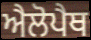
ਐਲੋਪੈਥ